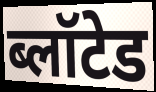
ब्लॉटेड